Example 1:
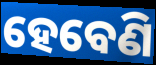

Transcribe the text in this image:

ହେବେଣି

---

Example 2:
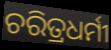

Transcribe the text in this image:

ଚରିତ୍ରଧର୍ମୀ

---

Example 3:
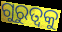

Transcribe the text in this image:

ଗୁରୁତ୍ୱକୁ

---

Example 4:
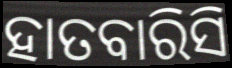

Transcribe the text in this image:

ହାତବାରିସି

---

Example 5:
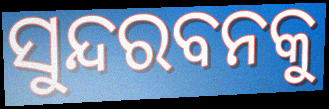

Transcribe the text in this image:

ସୁନ୍ଦରବନକୁ